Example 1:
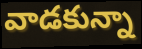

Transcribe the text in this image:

వాడకున్నా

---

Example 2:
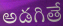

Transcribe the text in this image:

అడగితే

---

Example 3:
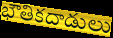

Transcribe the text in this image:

భౌతికదాడులు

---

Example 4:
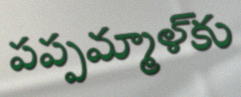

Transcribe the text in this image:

పప్పమ్మాళ్‌కు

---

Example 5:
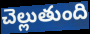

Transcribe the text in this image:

చెల్లుతుంది